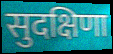
सुदक्षिणा